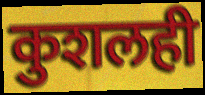
कुशलही